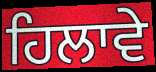
ਹਿਲਾਵੇ